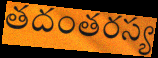
తదంతరస్య